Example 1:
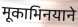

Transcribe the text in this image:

मूकाभिनयाने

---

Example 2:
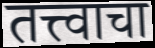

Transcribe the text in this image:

तत्त्वाचा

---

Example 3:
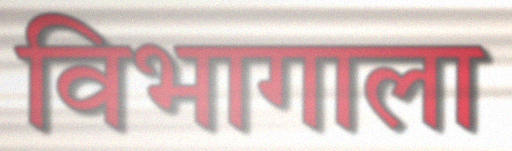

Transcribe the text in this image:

विभागाला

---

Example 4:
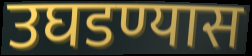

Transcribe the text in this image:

उघडण्यास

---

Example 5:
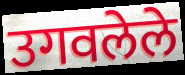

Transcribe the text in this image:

उगवलेले